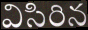
విసిరిన